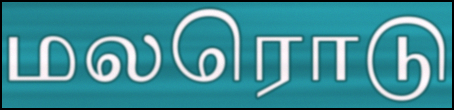
மலரொடு